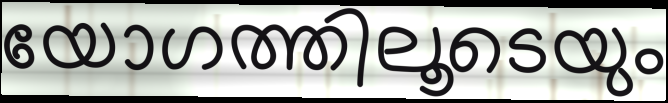
യോഗത്തിലൂടെയും